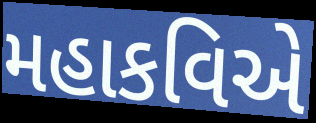
મહાકવિએ